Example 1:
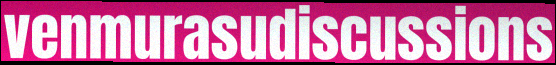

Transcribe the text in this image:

venmurasudiscussions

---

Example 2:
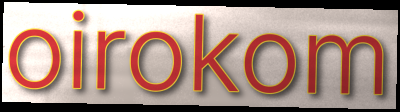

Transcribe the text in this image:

oirokom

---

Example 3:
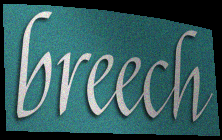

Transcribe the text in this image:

breech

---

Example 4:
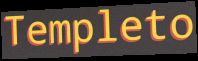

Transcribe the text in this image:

Templeto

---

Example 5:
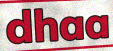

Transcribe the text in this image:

dhaa